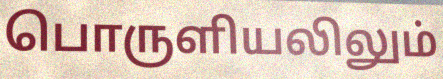
பொருளியலிலும்